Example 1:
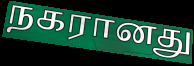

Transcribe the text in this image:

நகரானது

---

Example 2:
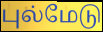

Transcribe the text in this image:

புல்மேடு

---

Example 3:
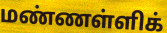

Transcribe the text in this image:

மண்ணள்ளிக்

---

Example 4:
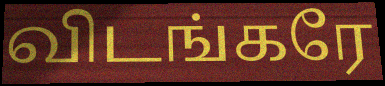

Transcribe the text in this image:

விடங்கரே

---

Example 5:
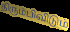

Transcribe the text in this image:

திரும்பிவிடும்